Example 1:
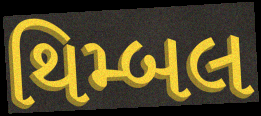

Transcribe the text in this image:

થિમ્બલ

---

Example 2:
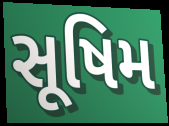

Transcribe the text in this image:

સૂષિમ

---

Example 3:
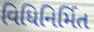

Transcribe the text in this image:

વિધિનિર્મિત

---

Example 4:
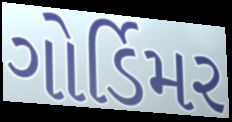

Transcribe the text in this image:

ગોર્ડિમર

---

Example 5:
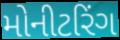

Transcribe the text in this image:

મોનીટરિંગ